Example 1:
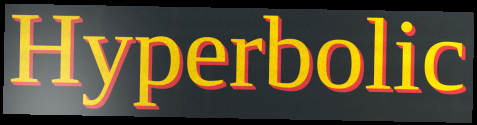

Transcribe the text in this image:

Hyperbolic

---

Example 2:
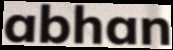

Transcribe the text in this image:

abhan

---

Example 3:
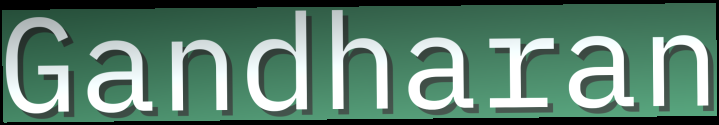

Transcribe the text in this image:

Gandharan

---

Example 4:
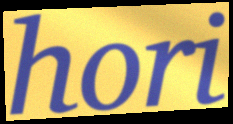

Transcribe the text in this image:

hori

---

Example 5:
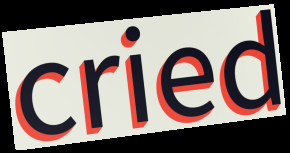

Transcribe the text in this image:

cried